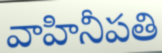
వాహినీపతి